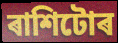
ৰাশিটোৰ